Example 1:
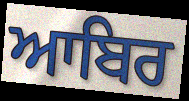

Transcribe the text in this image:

ਆਬਿਰ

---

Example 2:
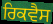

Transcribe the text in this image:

ਰਿਕਵੈਸ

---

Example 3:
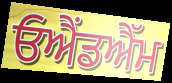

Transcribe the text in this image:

ਓਐਂਡਐੱਮ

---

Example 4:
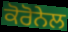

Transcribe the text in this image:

ਕੋਰੋਨੇਲ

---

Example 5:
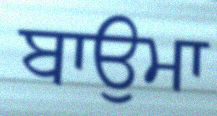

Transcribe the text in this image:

ਬਾਉਮਾ